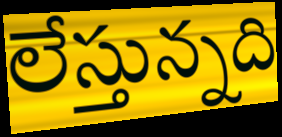
లేస్తున్నది